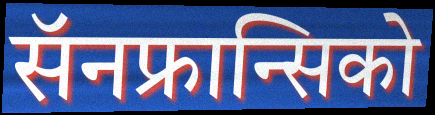
सॅनफ्रान्सिको